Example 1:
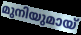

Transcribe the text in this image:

മുനിയുമായ്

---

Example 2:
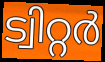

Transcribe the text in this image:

ട്വിറ്റർ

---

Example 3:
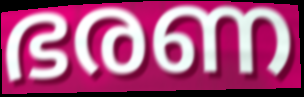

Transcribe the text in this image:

ഭരണ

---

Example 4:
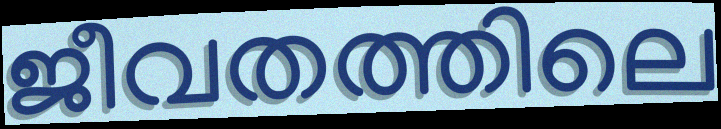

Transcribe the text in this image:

ജീവതത്തിലെ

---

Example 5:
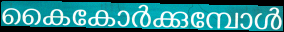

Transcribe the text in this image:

കൈകോർക്കുമ്പോൾ